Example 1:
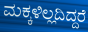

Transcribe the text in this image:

ಮಕ್ಕಳಿಲ್ಲದಿದ್ದರೆ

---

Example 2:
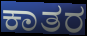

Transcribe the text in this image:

ಕಾತರ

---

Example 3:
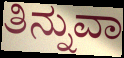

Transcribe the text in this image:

ತಿನ್ನುವಾ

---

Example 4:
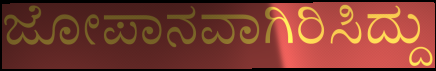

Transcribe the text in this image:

ಜೋಪಾನವಾಗಿರಿಸಿದ್ದು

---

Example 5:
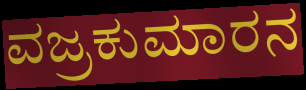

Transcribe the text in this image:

ವಜ್ರಕುಮಾರನ